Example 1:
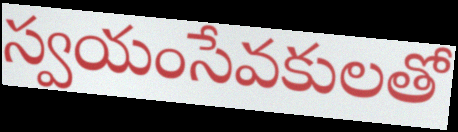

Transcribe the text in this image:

స్వయంసేవకులతో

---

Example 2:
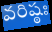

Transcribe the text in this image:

వరిష్ఠః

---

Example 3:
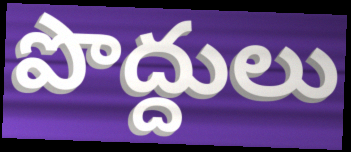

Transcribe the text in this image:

పొద్దులు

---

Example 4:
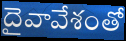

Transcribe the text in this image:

దైవావేశంతో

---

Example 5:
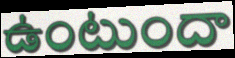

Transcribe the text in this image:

ఉంటుందా